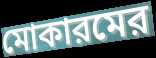
মোকারমের